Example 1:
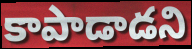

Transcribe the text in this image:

కాపాడాడని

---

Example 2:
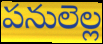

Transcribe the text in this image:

పనులెల్ల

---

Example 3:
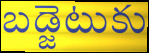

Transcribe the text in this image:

బడ్జెటుకు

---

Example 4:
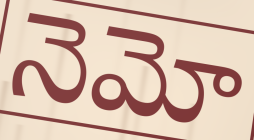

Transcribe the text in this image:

నెమో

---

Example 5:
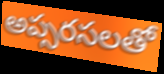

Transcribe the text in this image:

అప్సరసలతో